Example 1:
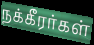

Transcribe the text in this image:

நக்கீரர்கள்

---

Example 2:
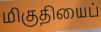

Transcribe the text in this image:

மிகுதியைப்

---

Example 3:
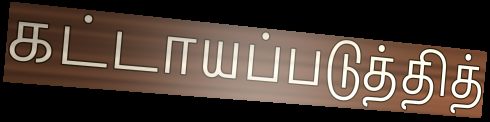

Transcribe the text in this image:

கட்டாயப்படுத்தித்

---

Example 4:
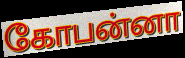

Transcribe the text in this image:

கோபன்னா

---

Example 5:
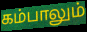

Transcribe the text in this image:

கம்பாலும்